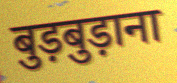
बुड़बुड़ाना